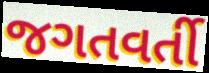
જગતવર્તી